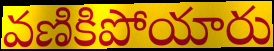
వణికిపోయారు